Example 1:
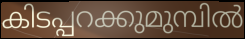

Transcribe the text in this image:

കിടപ്പറക്കുമുമ്പിൽ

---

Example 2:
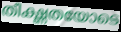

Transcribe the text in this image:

തീക്ഷ്ണതയോടെ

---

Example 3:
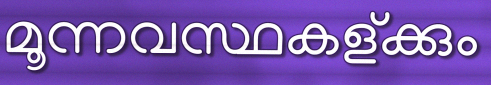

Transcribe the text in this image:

മൂന്നവസ്ഥകള്ക്കും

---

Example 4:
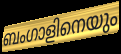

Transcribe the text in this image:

ബംഗാളിനെയും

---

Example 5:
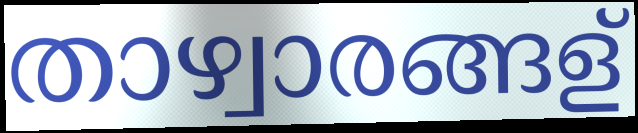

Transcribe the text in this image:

താഴ്വാരങ്ങള്